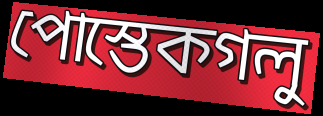
পোস্তেকগলু